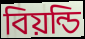
বিয়ন্ডি